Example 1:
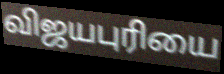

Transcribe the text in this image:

விஜயபுரியை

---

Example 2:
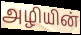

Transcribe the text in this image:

அழியின்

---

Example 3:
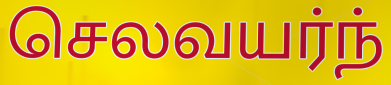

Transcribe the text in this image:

செலவயர்ந்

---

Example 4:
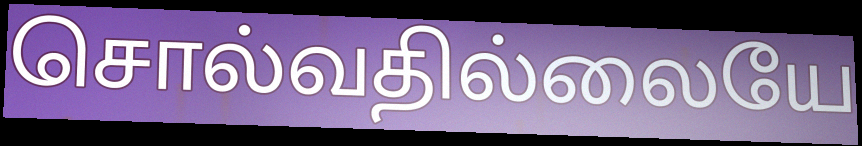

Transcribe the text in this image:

சொல்வதில்லையே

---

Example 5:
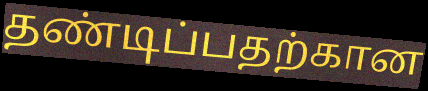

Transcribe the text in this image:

தண்டிப்பதற்கான